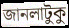
জানলাটুকু